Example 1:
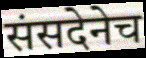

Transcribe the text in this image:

संसदेनेच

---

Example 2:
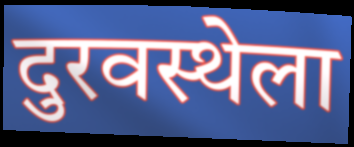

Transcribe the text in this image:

दुरवस्थेला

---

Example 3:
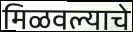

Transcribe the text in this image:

मिळवल्याचे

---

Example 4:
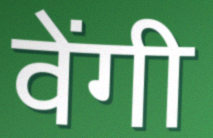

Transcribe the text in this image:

वेंगी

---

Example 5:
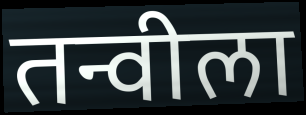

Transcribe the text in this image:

तन्वीला